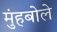
मुंहबोले